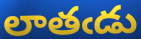
లాతఁడు